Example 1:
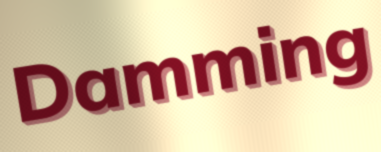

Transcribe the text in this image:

Damming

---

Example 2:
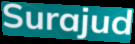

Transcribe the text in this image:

Surajud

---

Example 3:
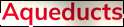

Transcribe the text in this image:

Aqueducts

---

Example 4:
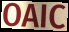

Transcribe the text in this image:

OAIC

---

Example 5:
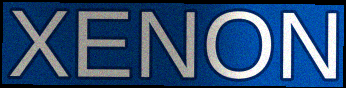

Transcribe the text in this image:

XENON